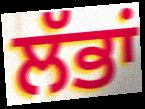
ਲੱਭਾਂ